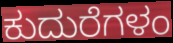
ಕುದುರೆಗಳಂ